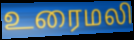
உரைமலி